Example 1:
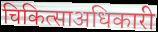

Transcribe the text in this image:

चिकित्साअधिकारी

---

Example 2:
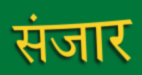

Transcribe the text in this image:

संजार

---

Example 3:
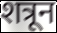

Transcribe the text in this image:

शत्रून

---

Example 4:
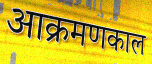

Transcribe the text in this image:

आक्रमणकाल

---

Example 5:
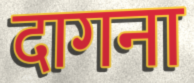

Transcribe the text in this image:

दागना